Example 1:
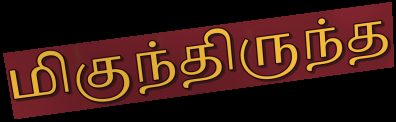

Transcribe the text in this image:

மிகுந்திருந்த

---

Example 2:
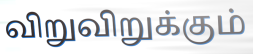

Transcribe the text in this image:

விறுவிறுக்கும்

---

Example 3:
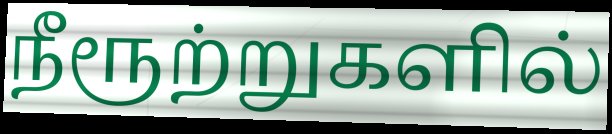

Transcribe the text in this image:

நீரூற்றுகளில்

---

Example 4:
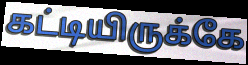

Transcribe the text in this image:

கட்டியிருக்கே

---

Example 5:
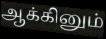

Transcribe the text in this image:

ஆக்கினும்